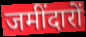
जमींदारों